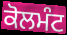
ਕੋਲਮੰਟ